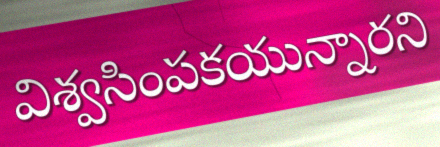
విశ్వసింపకయున్నారని